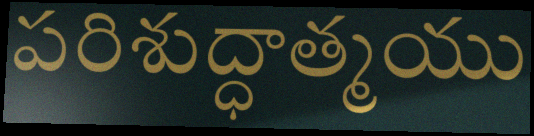
పరిశుద్ధాత్మయు